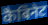
कैबिनेट